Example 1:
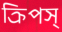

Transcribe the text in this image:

ক্রিপস্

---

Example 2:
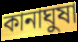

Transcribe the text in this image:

কানাঘুষা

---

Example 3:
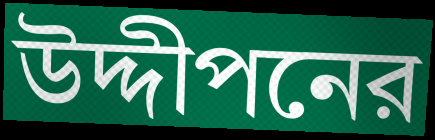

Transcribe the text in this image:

উদ্দীপনের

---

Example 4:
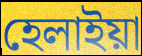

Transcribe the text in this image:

হেলাইয়া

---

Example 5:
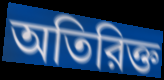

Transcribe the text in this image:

অতিরিক্ত